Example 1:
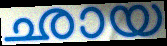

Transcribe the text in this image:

ഛായ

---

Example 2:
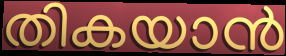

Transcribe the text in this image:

തികയാൻ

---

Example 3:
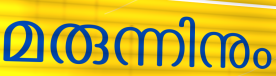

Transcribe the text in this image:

മരുന്നിനും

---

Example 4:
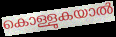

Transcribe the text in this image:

കൊള്ളുകയാൽ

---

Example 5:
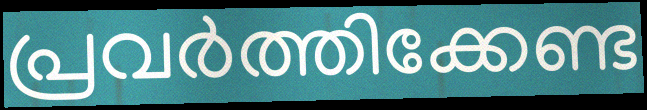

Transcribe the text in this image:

പ്രവർത്തിക്കേണ്ട